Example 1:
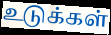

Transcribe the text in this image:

உடுக்கள்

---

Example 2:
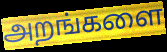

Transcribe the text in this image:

அறங்களை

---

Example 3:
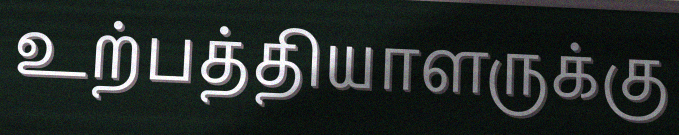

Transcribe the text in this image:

உற்பத்தியாளருக்கு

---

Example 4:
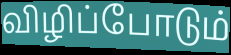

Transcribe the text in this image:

விழிப்போடும்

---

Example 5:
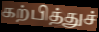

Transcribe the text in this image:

கற்பித்துச்